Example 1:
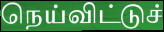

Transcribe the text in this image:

நெய்விட்டுச்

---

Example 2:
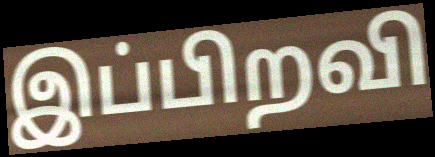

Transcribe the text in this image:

இப்பிறவி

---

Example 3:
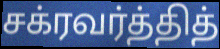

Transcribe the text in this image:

சக்ரவர்த்தித்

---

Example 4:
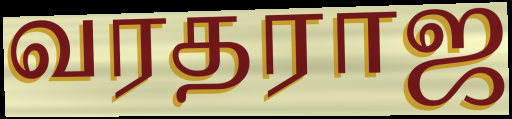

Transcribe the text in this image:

வரதராஜ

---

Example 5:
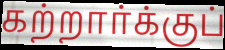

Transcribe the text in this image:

கற்றார்க்குப்